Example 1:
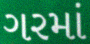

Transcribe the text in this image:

ગરમાં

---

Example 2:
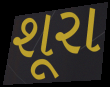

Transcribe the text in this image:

શૂરા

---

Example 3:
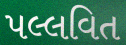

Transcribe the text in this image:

પલ્લવિત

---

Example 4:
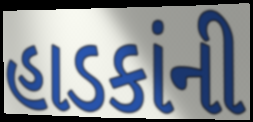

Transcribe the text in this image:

હાડકાંની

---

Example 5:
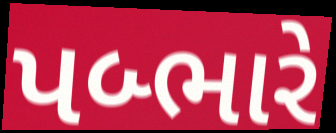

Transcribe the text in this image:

પબ્ભારે